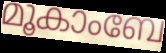
മൂകാംബേ